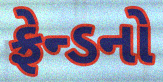
ફ્રેન્ડનો